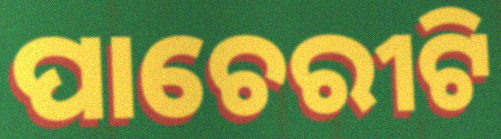
ପାଚେରୀଟି